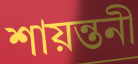
শায়ন্তনী